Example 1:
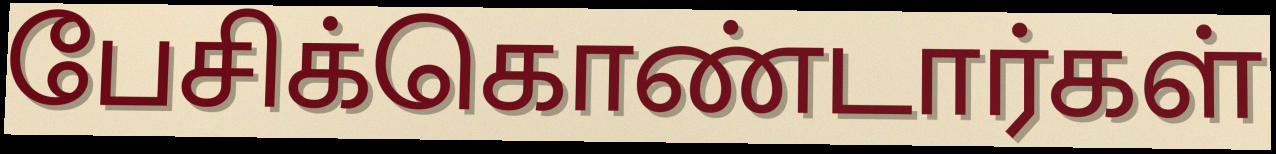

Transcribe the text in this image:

பேசிக்கொண்டார்கள்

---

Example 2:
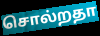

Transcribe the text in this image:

சொல்றதா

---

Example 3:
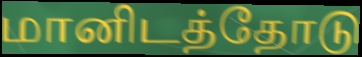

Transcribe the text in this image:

மானிடத்தோடு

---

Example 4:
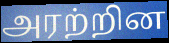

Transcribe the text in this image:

அரற்றின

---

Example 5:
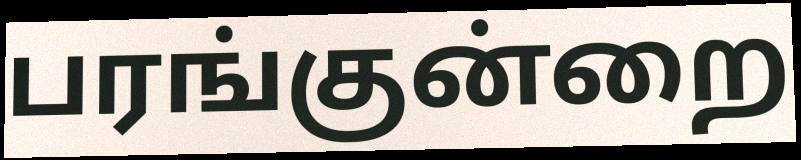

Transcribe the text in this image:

பரங்குன்றை